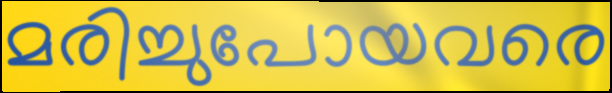
മരിച്ചുപോയവരെ